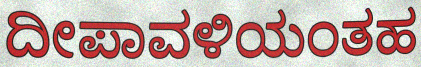
ದೀಪಾವಳಿಯಂತಹ